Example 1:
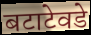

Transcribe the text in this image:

बटाटेवडे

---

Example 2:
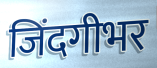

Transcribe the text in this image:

जिंदगीभर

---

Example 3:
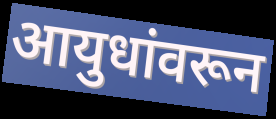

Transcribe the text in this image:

आयुधांवरून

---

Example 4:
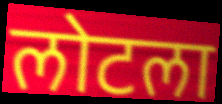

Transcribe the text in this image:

लोटला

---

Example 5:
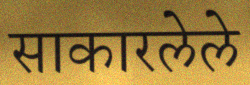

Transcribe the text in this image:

साकारलेले